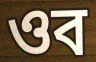
ওব